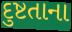
દુષ્ટતાના